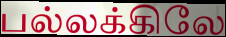
பல்லக்கிலே